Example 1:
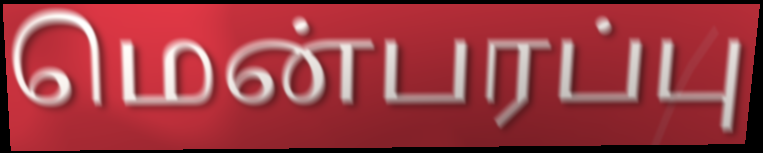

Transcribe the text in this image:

மென்பரப்பு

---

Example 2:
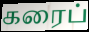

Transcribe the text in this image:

கரைப்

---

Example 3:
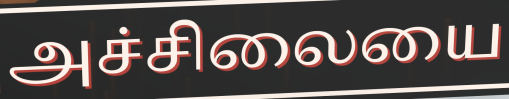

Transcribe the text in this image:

அச்சிலையை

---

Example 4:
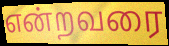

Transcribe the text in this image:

என்றவரை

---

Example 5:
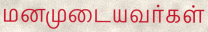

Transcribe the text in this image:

மனமுடையவர்கள்